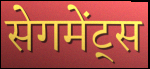
सेगमेंट्स